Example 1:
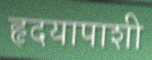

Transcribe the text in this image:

हृदयापाशी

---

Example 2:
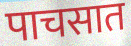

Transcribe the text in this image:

पाचसात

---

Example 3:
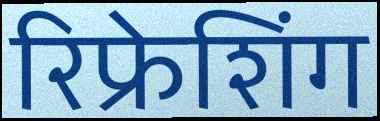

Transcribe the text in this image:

रिफ्रेशिंग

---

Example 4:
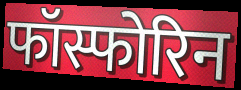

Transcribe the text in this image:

फॉस्फोरिन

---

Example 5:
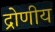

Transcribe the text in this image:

द्रोणीय